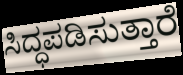
ಸಿದ್ಧಪಡಿಸುತ್ತಾರೆ